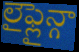
లైఫ్లైన్గా